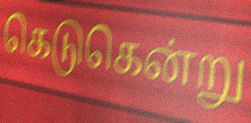
கெடுகென்று